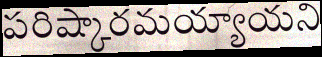
పరిష్కారమయ్యాయని